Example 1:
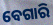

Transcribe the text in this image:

ବେଗାରି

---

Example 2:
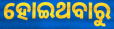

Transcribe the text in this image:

ହୋଇଥବାରୁ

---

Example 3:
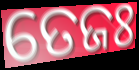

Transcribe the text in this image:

ତେଜଃ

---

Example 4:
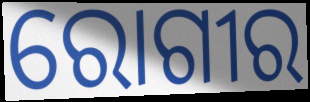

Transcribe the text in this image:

ରୋଗୀର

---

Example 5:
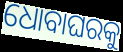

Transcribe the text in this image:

ଧୋବାଘରକୁ